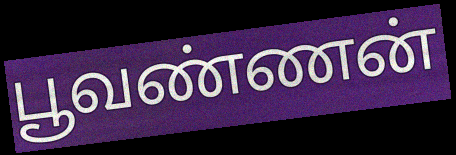
பூவண்ணன்